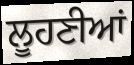
ਲੂਹਣੀਆਂ